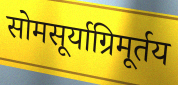
सोमसूर्याग्रिमूर्तय